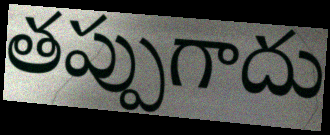
తప్పుగాదు